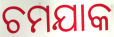
ଚମଯାକ